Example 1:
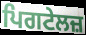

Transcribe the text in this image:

ਪਿਗਟੇਲਜ਼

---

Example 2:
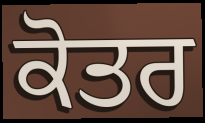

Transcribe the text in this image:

ਕੋਤਰ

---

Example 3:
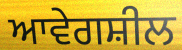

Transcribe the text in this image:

ਆਵੇਗਸ਼ੀਲ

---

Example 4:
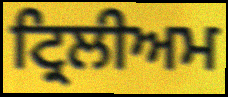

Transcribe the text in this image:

ਟ੍ਰਿਲੀਅਮ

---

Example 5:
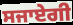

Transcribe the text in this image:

ਸਜਾਏਗੀ